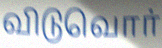
விடுவொர்